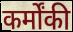
कर्मोंकी